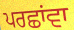
ਪਰਛਾਂਵਾ